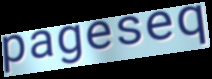
pageseq